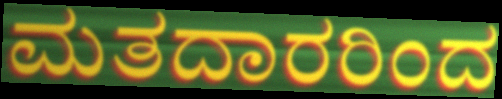
ಮತದಾರರಿಂದ